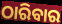
ଠାରିବାର